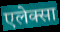
एलेक्सा